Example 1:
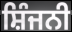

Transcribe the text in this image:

ਸ਼ਿੰਜਨੀ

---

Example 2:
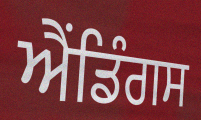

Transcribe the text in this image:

ਐਂਡਿੰਗਸ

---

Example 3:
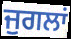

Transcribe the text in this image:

ਜੁਗਲਾਂ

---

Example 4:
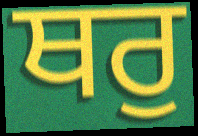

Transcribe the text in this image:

ਥਰੁ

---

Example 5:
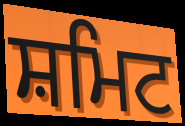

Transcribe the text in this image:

ਸ਼ਮਿਟ